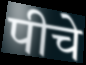
पीचे